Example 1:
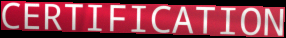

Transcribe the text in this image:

CERTIFICATION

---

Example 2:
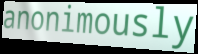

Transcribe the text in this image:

anonimously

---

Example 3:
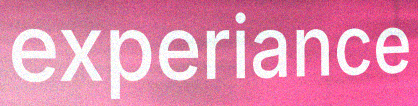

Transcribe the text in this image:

experiance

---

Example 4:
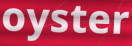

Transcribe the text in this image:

oyster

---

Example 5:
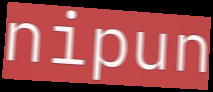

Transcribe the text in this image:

nipun